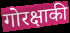
गोरक्षाकी